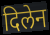
दिलेन